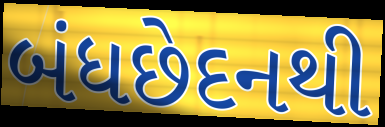
બંધછેદનથી